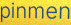
pinmen